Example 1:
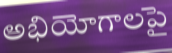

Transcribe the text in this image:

అభియోగాలపై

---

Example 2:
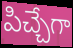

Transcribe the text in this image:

పిచ్చేగా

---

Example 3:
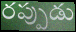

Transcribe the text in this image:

రప్పుడు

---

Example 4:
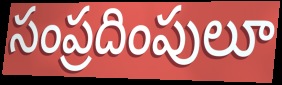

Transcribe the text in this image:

సంప్రదింపులూ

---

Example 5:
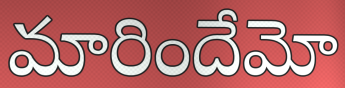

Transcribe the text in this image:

మారిందేమో